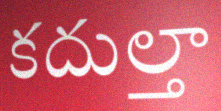
కదుల్తా